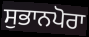
ਸੁਭਾਨਪੋਰਾ